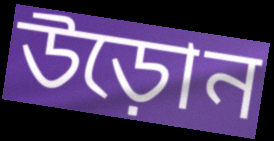
উড়োন